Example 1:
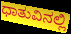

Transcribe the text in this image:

ಧಾತುವಿನಲ್ಲಿ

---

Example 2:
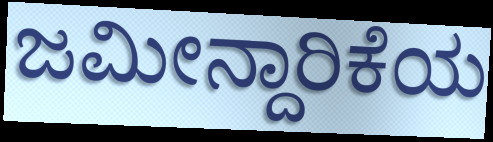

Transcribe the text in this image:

ಜಮೀನ್ದಾರಿಕೆಯ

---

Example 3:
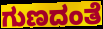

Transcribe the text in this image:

ಗುಣದಂತೆ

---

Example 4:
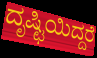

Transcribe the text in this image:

ದೃಷ್ಟಿಯಿದ್ದರೆ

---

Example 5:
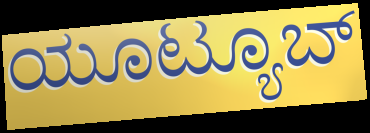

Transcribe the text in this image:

ಯೂಟ್ಯೂಬ್